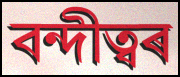
বন্দীত্বৰ